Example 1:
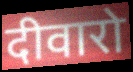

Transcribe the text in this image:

दीवारो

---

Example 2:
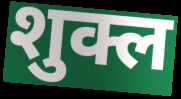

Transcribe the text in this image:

शुक्ल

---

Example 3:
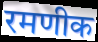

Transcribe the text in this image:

रमणीक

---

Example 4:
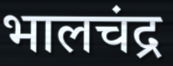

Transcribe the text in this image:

भालचंद्र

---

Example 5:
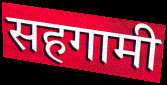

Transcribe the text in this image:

सहगामी